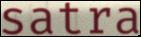
satra